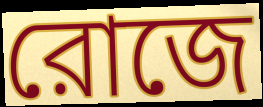
রোজে